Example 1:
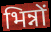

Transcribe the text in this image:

भिन्नों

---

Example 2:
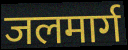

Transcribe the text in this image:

जलमार्ग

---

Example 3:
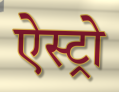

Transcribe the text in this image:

ऐस्ट्रो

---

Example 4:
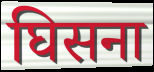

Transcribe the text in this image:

घिसना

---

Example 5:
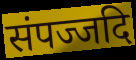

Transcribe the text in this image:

संपज्जदि